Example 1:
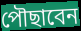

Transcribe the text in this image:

পৌছাবেন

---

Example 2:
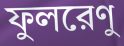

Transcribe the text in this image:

ফুলরেণু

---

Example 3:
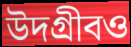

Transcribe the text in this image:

উদগ্রীবও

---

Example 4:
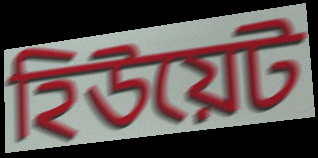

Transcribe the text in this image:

হিউয়েট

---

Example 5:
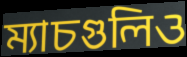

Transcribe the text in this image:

ম্যাচগুলিও